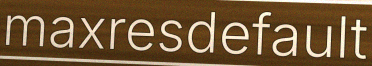
maxresdefault